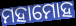
ମହାମୋହ